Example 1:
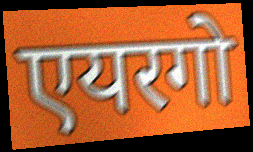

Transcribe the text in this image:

एयरगो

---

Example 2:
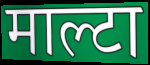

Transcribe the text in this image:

माल्टा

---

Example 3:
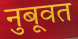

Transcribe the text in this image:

नुबूवत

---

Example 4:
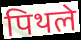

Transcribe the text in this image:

पिथले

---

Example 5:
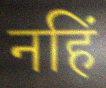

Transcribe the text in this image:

नहिं